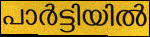
പാർട്ടിയിൽ